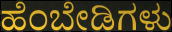
ಹೆಂಬೇಡಿಗಳು